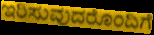
ಇರಿಸುವುದರೊಂದಿಗೆ